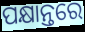
ପକ୍ଷାନ୍ତରେ